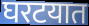
घरटयात